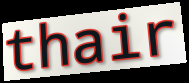
thair